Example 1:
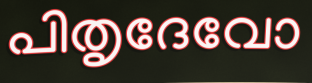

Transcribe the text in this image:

പിതൃദേവോ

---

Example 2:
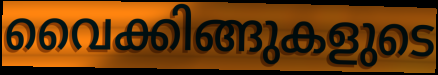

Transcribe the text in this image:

വൈക്കിങ്ങുകളുടെ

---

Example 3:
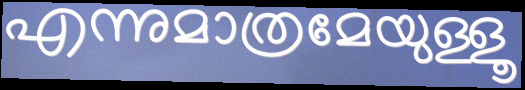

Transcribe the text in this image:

എന്നുമാത്രമേയുള്ളൂ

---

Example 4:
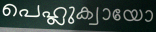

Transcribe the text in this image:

പെഹ്ലുക്വായോ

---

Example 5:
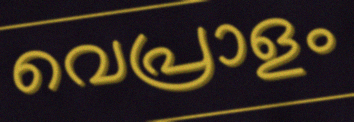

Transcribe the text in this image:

വെപ്രാളം